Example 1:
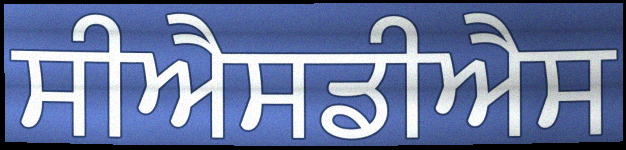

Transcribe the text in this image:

ਸੀਐਸਡੀਐਸ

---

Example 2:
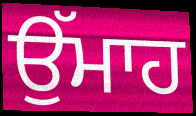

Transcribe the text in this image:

ਉੱਮਾਹ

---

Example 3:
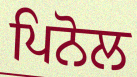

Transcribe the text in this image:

ਪਿਨੋਲ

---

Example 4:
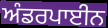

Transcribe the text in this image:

ਅੰਡਰਪਾਈਨ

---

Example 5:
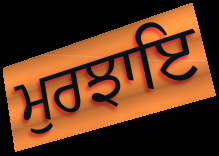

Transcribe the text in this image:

ਮੁਰਝਾਇ